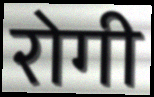
रोगी